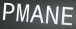
PMANE